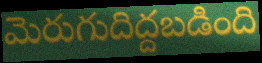
మెరుగుదిద్దబడింది